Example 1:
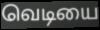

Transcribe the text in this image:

வெடியை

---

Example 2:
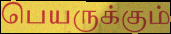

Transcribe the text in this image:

பெயருக்கும்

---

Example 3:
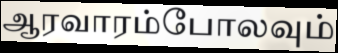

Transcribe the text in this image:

ஆரவாரம்போலவும்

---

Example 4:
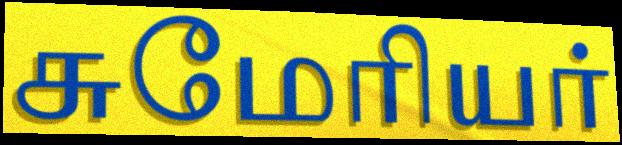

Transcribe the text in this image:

சுமேரியர்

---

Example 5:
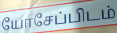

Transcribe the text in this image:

யோசேப்பிடம்